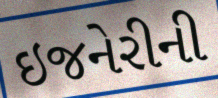
ઇજનેરીની